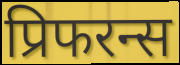
प्रिफरन्स